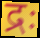
द्रः